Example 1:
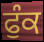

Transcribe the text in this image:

ਫੁੰਕ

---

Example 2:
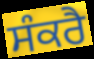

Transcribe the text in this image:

ਸੰਕਰੈ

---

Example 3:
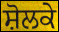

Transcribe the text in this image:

ਸ਼ੋਲਕੇ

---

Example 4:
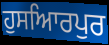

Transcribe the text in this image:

ਹੁਸਆਿਰਪੁਰ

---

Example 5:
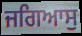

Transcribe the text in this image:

ਜਗਿਆਸੁ